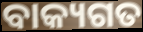
ବାକ୍ୟଗତ